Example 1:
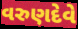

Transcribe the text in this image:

વરુણદેવે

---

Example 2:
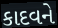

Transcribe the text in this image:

કાદવને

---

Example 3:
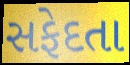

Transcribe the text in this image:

સફેદતા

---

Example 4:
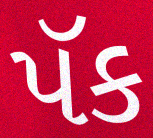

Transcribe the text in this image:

પૅક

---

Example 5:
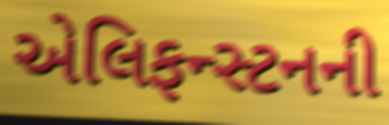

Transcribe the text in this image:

એલિફન્સ્ટનની